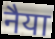
नैया